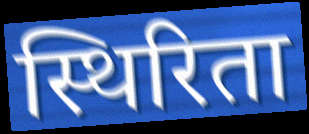
स्थिरिता